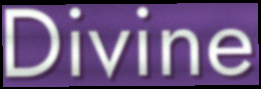
Divine